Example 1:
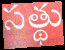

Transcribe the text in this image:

సత్థు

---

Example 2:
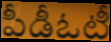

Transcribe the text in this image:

పీడీఓటీ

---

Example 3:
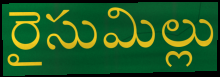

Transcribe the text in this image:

రైసుమిల్లు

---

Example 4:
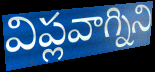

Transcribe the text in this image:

విప్లవాగ్నిని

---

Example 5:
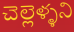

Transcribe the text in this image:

చెల్లెళ్ళని